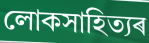
লোকসাহিত্যৰ